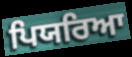
ਪਿਯਰਿਆ